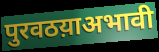
पुरवठय़ाअभावी